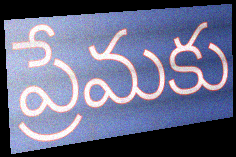
ప్రేమకు